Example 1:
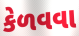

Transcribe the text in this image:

કેળવવા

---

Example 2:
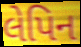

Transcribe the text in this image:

લેપિન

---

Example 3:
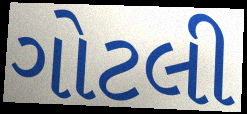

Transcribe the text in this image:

ગોટલી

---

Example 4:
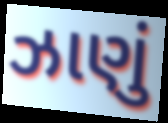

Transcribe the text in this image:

ઝાણું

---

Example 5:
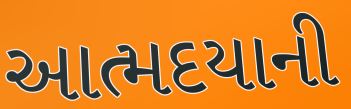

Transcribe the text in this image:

આત્મદયાની